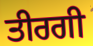
ਤੀਰਗੀ